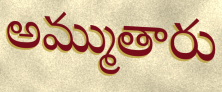
అమ్ముతారు